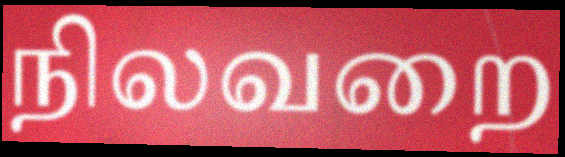
நிலவறை